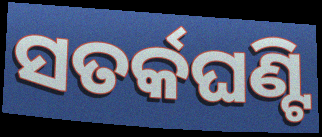
ସତର୍କଘଣ୍ଟି